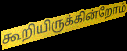
கூறியிருக்கின்றோம்